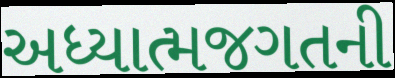
અધ્યાત્મજગતની